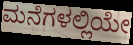
ಮನೆಗಳಲ್ಲಿಯೇ